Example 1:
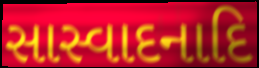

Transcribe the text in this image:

સાસ્વાદનાદિ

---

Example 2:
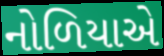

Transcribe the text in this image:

નોળિયાએ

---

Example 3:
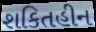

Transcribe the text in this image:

શકિતહીન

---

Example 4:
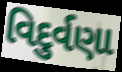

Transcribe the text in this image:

વિદુર્વણા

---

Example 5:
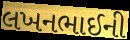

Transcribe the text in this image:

લખનભાઈની